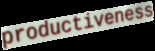
productiveness